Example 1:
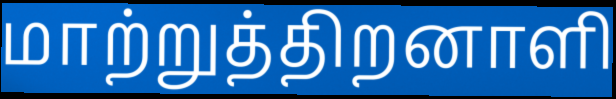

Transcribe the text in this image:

மாற்றுத்திறனாளி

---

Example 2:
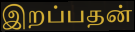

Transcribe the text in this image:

இறப்பதன்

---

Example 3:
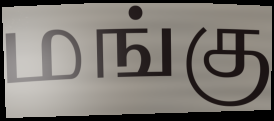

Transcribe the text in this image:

மங்கு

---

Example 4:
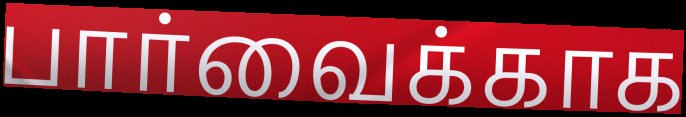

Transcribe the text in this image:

பார்வைக்காக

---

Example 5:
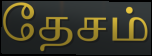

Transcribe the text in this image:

தேசம்